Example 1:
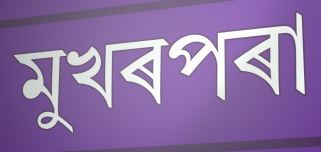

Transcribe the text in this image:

মুখৰপৰা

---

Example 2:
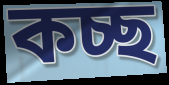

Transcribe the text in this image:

কচ্ছ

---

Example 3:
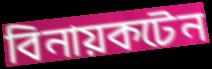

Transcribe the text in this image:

বিনায়কটেন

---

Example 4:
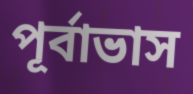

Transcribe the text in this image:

পূৰ্বাভাস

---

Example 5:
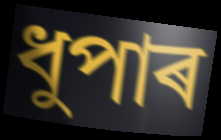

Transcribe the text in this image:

ধুপাৰ